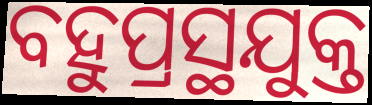
ବହୁପ୍ରସ୍ଥଯୁକ୍ତ